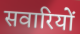
सवारियों